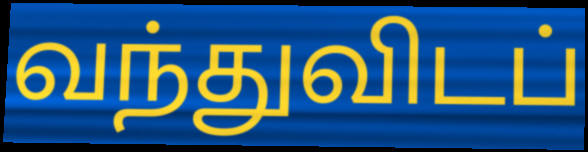
வந்துவிடப்